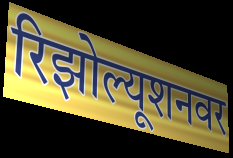
रिझोल्यूशनवर